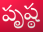
పృష్ఠ